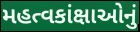
મહત્વકાંક્ષાઓનું